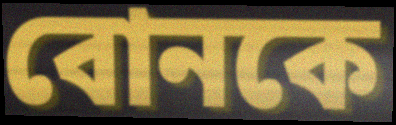
বোনকে